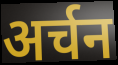
अर्चन